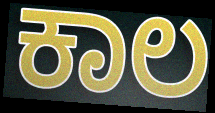
ಕಾಲ